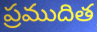
ప్రముదిత